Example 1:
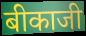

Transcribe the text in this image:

बीकाजी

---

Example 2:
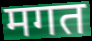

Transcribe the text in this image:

मगत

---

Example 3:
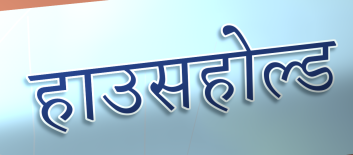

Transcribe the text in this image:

हाउसहोल्ड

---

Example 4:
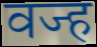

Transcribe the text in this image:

वज्ह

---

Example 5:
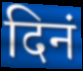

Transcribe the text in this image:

दिनं